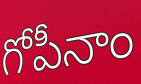
గోపీనాం